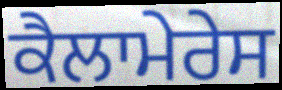
ਕੈਲਾਮੇਰੇਸ